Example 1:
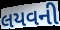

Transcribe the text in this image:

લયવની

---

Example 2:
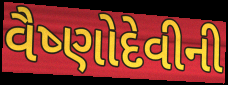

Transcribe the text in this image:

વૈષ્ણોદેવીની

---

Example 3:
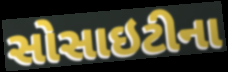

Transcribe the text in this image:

સોસાઇટીના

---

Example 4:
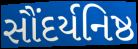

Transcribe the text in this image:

સૌંદર્યનિષ્ઠ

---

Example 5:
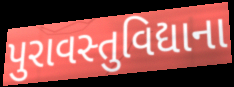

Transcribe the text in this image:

પુરાવસ્તુવિદ્યાના